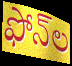
ఫోన్‌ల